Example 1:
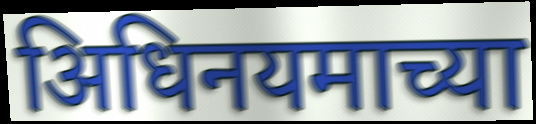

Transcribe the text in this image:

अिधिनयमाच्या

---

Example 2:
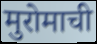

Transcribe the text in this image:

मुरोमाची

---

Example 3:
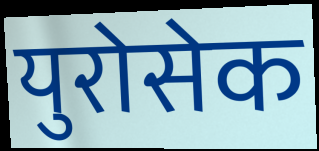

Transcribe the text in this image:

युरोसेक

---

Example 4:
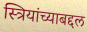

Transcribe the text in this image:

स्त्रियांच्याबद्दल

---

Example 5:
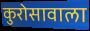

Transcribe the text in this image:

कुरोसावाला